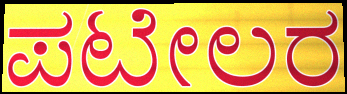
ಪಟೇಲರ